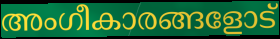
അംഗീകാരങ്ങളോട്